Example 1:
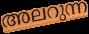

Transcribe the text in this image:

അലറുന്ന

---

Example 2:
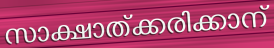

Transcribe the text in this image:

സാക്ഷാത്ക്കരിക്കാന്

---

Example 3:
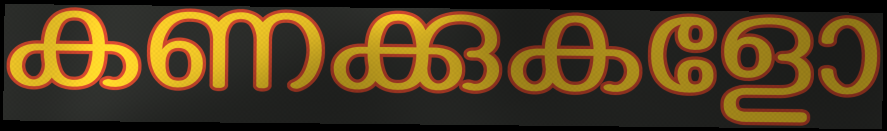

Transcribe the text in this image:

കണക്കുകളോ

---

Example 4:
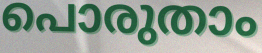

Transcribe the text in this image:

പൊരുതാം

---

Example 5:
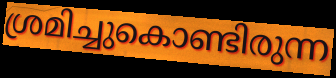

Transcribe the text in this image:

ശ്രമിച്ചുകൊണ്ടിരുന്ന